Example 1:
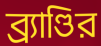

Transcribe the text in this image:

ব্র্যাণ্ডির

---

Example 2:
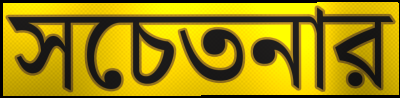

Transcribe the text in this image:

সচেতনার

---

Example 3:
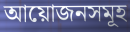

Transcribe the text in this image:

আয়োজনসমূহ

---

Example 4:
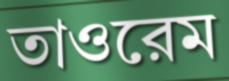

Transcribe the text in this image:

তাওরেম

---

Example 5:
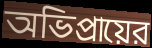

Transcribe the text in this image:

অভিপ্রায়ের